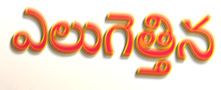
ఎలుగెత్తిన